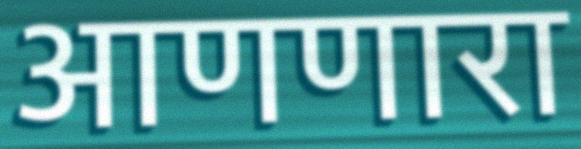
आणणारा